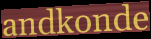
andkonde